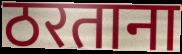
ठरताना